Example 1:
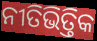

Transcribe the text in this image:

ନୀତିଭିତ୍ତିକ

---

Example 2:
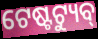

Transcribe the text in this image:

ଟେଷ୍ଟଟ୍ୟୁବ୍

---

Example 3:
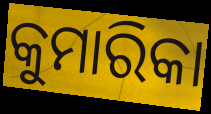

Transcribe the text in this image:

କୁମାରିକା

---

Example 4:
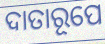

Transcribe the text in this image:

ଦାତାରୂପେ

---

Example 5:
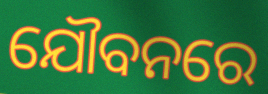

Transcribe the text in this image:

ଯୌବନରେ